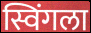
स्विंगला